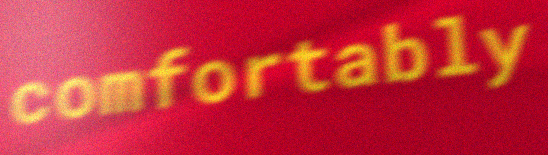
comfortably